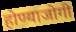
होण्याजोगी